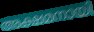
അക്ഷമനായി